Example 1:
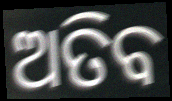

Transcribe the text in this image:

ଅତିବ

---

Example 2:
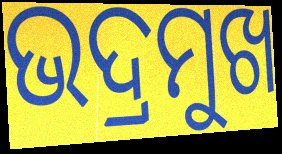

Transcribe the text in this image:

ଭଦ୍ରମୁଖ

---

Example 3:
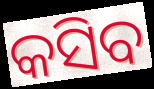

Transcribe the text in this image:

କସିବ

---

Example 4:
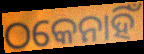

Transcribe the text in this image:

ଠକେନାହିଁ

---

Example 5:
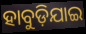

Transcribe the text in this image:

ହାବୁଡ଼ିଯାଇ